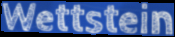
Wettstein